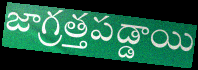
జాగ్రత్తపడ్డాయి